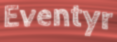
Eventyr